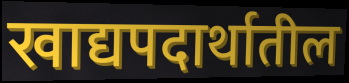
खाद्यपदार्थातील